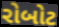
રોબોટ